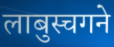
लाबुस्चगने